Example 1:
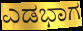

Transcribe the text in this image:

ಎಡಭಾಗ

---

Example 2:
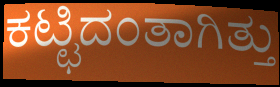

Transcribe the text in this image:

ಕಟ್ಟಿದಂತಾಗಿತ್ತು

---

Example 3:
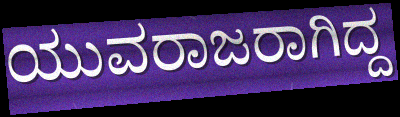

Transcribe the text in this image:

ಯುವರಾಜರಾಗಿದ್ದ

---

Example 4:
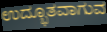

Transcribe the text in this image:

ಉದ್ಭೂತವಾಗುವ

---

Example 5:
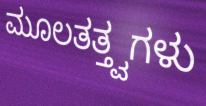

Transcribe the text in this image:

ಮೂಲತತ್ತ್ವಗಳು